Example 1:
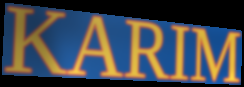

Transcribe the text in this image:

KARIM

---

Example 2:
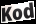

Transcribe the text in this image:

Kod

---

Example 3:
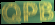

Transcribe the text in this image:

QPB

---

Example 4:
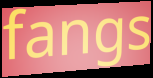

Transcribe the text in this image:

fangs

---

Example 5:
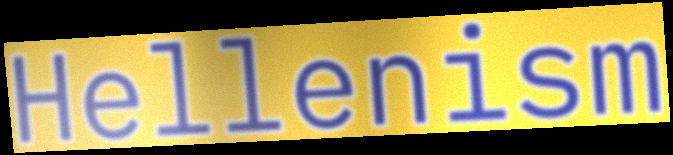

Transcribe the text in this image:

Hellenism